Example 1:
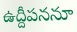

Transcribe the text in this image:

ఉద్దీపననూ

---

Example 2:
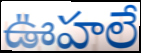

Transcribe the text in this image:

ఊహలే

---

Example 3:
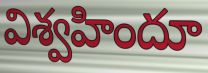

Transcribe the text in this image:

విశ్వహిందూ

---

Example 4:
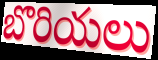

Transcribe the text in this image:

బొరియలు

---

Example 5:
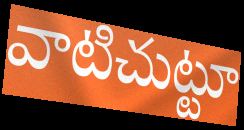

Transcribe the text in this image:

వాటిచుట్టూ